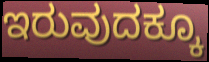
ಇರುವುದಕ್ಕೂ